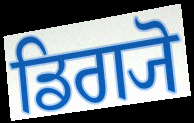
ਡਿਗ੍ਯੋ